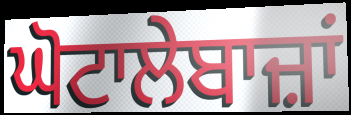
ਘੋਟਾਲੇਬਾਜ਼ਾਂ